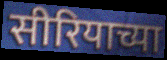
सीरियाच्या